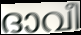
ദാവീ